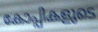
കോപ്പികളുടെ